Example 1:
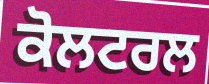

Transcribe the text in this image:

ਕੋਲਟਰਲ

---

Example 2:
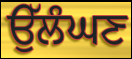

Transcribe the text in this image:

ਉੱਲੰਘਣ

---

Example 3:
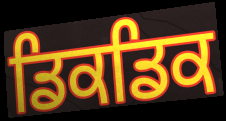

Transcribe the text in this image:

ਡਿਕਡਿਕ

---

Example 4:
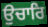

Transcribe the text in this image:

ਉਚਾਰਿ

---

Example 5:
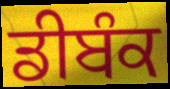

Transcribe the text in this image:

ਡੀਬੰਕ